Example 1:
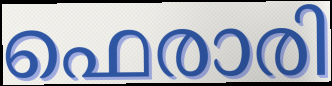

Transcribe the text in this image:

ഫെരാരി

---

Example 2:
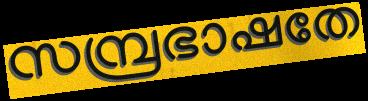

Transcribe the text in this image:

സമ്പ്രഭാഷതേ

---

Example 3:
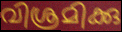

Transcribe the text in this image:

വിശ്രമിക്കു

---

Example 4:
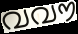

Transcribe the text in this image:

വവൗ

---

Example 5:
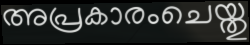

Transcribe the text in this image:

അപ്രകാരംചെയ്തു